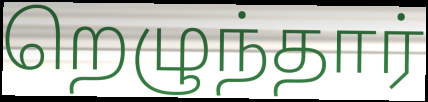
றெழுந்தார்